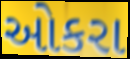
ઓકરા